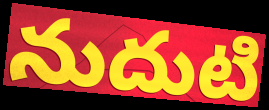
నుదుటి